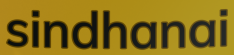
sindhanai